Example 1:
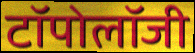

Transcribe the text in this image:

टॉपोलॉजी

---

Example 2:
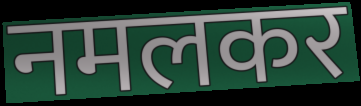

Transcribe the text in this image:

नमलकर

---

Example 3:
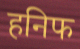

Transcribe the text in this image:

हनिफ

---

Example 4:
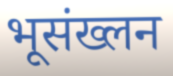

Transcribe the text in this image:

भूसंख्लन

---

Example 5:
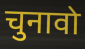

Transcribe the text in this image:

चुनावो